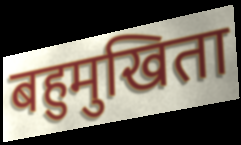
बहुमुखिता